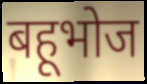
बहूभोज